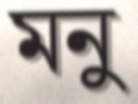
মনু